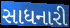
સાધનારી